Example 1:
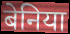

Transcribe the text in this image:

बेनिया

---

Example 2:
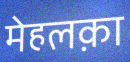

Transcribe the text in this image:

मेहलक़ा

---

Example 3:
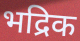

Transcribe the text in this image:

भद्रिक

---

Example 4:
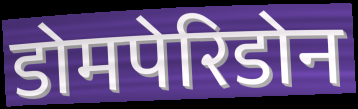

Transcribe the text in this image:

डोमपेरिडोन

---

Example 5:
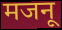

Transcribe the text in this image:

मजनू